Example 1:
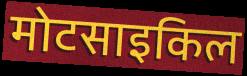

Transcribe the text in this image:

मोटसाइकिल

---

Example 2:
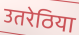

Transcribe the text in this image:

उतरेठिया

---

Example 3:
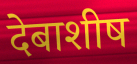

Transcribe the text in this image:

देबाशीष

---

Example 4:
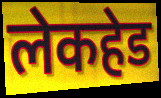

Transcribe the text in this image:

लेकहेड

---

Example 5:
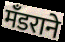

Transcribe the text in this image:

मँडराने